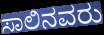
ಸಾಲಿನವರು